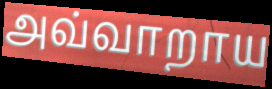
அவ்வாறாய